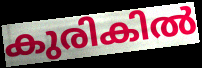
കുരികിൽ